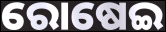
ରୋଷେଇ